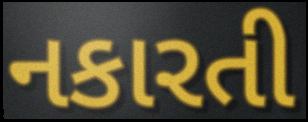
નકારતી